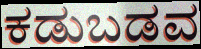
ಕಡುಬಡವ